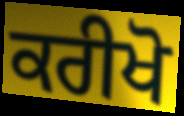
ਕਰੀਖੋ